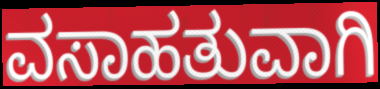
ವಸಾಹತುವಾಗಿ